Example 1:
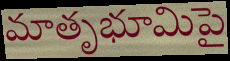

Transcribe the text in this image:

మాతృభూమిపై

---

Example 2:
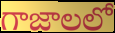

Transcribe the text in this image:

గాజాలలో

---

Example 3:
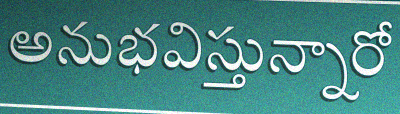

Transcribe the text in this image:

అనుభవిస్తున్నారో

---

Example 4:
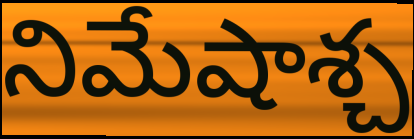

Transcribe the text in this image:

నిమేషాశ్చ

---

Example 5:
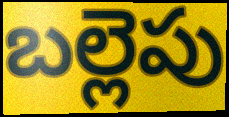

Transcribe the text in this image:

బల్లెపు